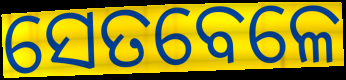
ସେତବେଳେ